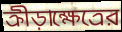
ক্রীড়াক্ষেত্রের